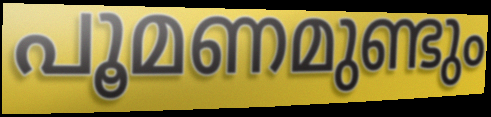
പൂമണമുണ്ടും